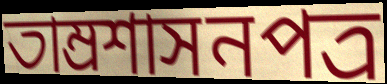
তাম্রশাসনপত্র